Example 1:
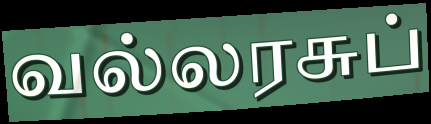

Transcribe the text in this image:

வல்லரசுப்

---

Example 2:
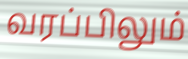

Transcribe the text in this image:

வரப்பிலும்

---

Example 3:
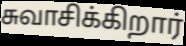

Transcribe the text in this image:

சுவாசிக்கிறார்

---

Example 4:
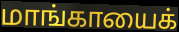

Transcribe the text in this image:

மாங்காயைக்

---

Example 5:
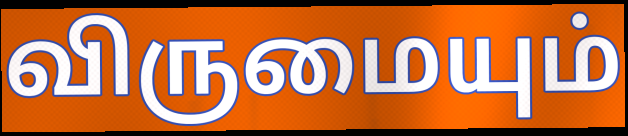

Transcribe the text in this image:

விருமையும்